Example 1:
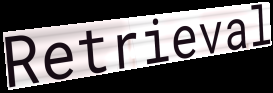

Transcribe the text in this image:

Retrieval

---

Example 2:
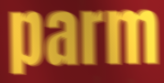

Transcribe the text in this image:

parm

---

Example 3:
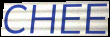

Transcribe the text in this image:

CHEE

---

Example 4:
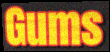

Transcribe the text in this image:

Gums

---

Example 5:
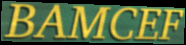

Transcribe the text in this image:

BAMCEF